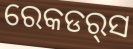
ରେକଡର୍‌ସ